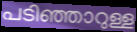
പടിഞ്ഞാറുള്ള